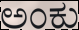
ಅಂಕು